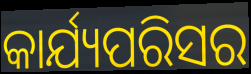
କାର୍ଯ୍ୟପରିସର